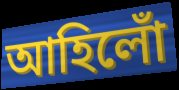
আহিলোঁ